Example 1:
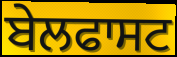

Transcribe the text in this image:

ਬੇਲਫਾਸਟ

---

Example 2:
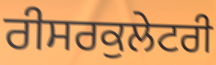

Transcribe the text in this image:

ਰੀਸਰਕੁਲੇਟਰੀ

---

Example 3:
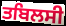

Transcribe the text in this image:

ਤਬਿਲਸੀ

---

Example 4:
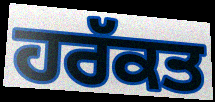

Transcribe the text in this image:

ਹਰੱਕਤ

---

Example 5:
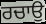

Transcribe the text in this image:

ਰਚਾਉ